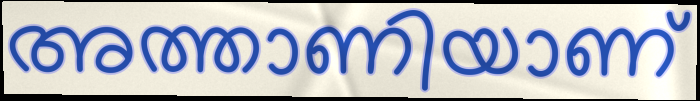
അത്താണിയാണ്